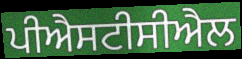
ਪੀਐਸਟੀਸੀਐਲ